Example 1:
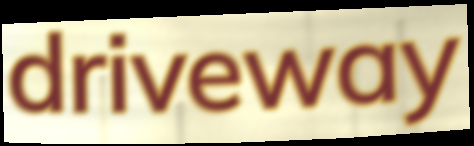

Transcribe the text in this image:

driveway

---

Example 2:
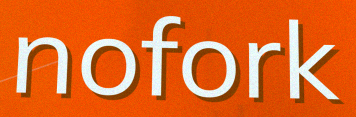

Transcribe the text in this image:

nofork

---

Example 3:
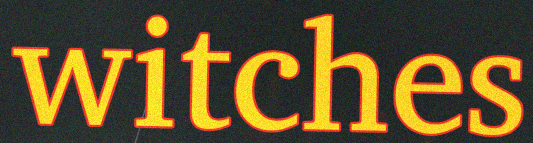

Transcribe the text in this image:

witches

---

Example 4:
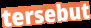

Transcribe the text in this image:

tersebut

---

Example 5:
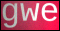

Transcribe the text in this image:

gwe